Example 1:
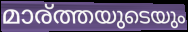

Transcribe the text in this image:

മാര്ത്തയുടെയും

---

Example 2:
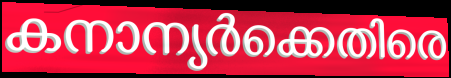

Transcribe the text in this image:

കനാന്യർക്കെതിരെ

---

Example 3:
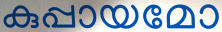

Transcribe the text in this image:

കുപ്പായമോ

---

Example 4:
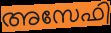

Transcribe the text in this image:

അസേഫി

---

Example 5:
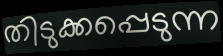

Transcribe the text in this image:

തിടുക്കപ്പെടുന്ന